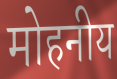
मोहनीय